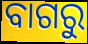
ବାଗରୁ